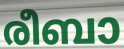
രീബാ